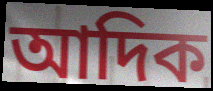
আদিক